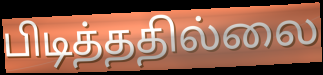
பிடித்ததில்லை